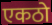
एकठो